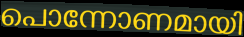
പൊന്നോണമായി